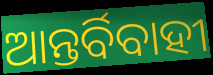
ଆନ୍ତର୍ବିବାହୀ